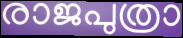
രാജപുത്രാ